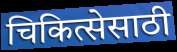
चिकित्सेसाठी